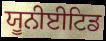
ਯੂਨੀਈਟਿਡ